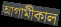
আগামীকাল